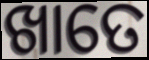
ଖାତେ